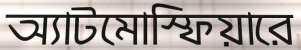
অ্যাটমোস্ফিয়ারে